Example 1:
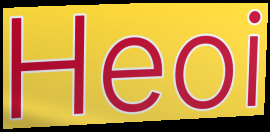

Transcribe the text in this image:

Heoi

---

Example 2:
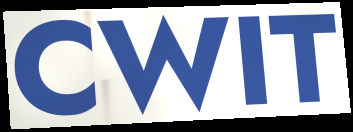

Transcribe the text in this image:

CWIT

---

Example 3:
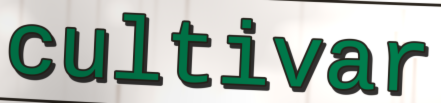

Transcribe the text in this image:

cultivar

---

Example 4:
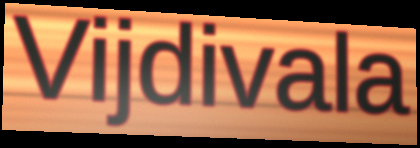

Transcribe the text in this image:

Vijdivala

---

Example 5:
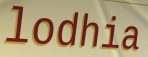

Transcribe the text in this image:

lodhia